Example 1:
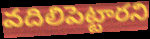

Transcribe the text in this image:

వదిలిపెట్టారని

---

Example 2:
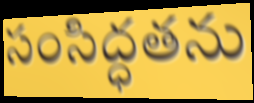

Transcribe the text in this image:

సంసిద్ధతను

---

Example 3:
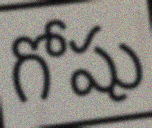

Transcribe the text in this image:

గోషు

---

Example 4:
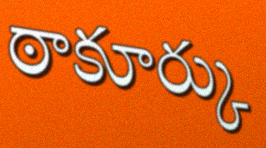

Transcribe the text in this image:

ఠాకూర్కు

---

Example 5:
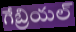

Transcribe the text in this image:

గేబ్రియల్